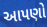
આપણો